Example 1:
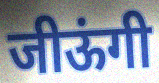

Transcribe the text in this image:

जीऊंगी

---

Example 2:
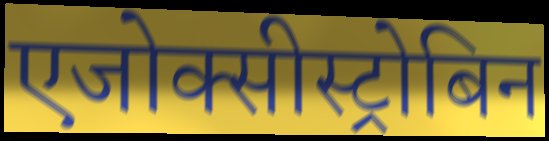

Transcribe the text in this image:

एजोक्सीस्ट्रोबिन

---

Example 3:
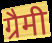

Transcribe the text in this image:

ग्रैमी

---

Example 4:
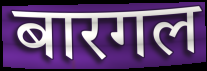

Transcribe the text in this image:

बारगल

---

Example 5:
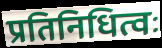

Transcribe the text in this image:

प्रतिनिधित्वः